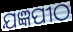
ଯଜ୍ଞପୀଠ